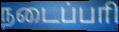
நடைப்பரி